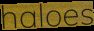
haloes